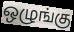
ஒழுங்கு